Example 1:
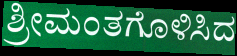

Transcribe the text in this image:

ಶ್ರೀಮಂತಗೊಳಿಸಿದ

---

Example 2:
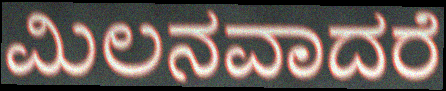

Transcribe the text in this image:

ಮಿಲನವಾದರೆ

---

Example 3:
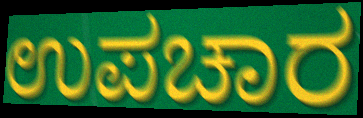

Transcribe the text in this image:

ಉಪಚಾರ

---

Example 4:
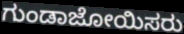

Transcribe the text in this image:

ಗುಂಡಾಜೋಯಿಸರು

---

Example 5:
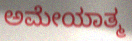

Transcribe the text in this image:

ಅಮೇಯಾತ್ಮ